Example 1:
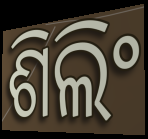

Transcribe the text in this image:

ଶିଲିଂ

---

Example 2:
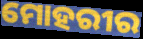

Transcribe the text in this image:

ମୋହରୀର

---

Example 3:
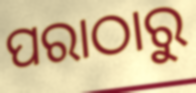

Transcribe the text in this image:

ପରାଠାରୁ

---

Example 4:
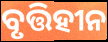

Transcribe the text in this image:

ବୃତ୍ତିହୀନ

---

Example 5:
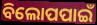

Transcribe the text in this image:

ବିଲୋପପାଇଁ